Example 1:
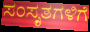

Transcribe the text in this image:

ಸಂಸ್ಕೃತಗಳಿಗೆ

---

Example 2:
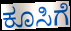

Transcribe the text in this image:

ಕೂಸಿಗೆ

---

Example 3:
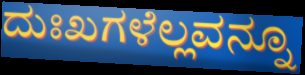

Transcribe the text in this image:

ದುಃಖಗಳೆಲ್ಲವನ್ನೂ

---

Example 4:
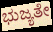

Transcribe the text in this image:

ಭುಜ್ಯತೇ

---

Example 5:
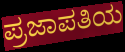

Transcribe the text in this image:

ಪ್ರಜಾಪತಿಯ